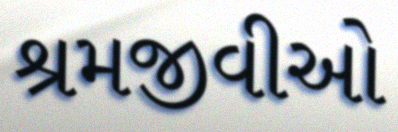
શ્રમજીવીઓ